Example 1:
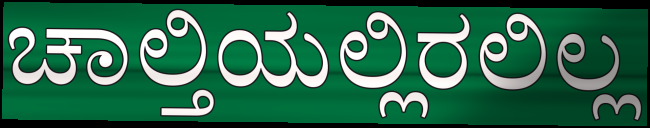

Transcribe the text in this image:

ಚಾಲ್ತಿಯಲ್ಲಿರಲಿಲ್ಲ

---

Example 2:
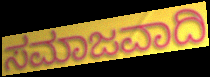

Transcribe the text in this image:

ಸಮಾಜವಾದಿ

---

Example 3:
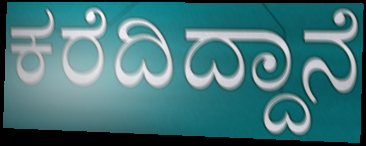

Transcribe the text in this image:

ಕರೆದಿದ್ದಾನೆ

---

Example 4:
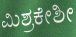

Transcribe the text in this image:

ಮಿಶ್ರಕೇಶೀ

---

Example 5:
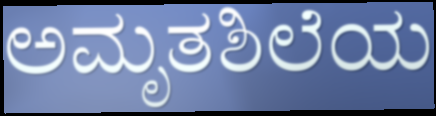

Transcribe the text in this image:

ಅಮೃತಶಿಲೆಯ